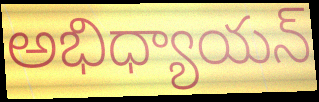
అభిధ్యాయన్